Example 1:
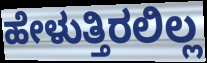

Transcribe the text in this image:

ಹೇಳುತ್ತಿರಲಿಲ್ಲ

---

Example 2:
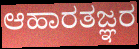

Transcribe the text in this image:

ಆಹಾರತಜ್ಞರ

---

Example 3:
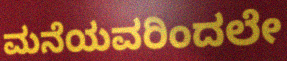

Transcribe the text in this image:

ಮನೆಯವರಿಂದಲೇ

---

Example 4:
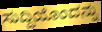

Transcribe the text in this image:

ಸುದ್ದಿಯೊಂದನ್ನು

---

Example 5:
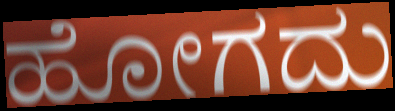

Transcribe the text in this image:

ಹೋಗದು